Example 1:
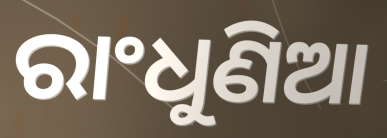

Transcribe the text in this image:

ରାଂଧୁଣିଆ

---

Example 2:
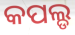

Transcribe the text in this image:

କପଲ୍ଡ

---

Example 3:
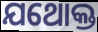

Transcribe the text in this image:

ଯଥୋକ୍ତ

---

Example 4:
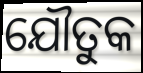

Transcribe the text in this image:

ଯୌତୁକ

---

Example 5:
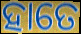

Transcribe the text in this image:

ହାତେ